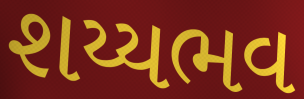
શય્યભવ